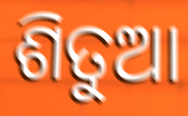
ଶିତୁଆ